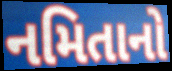
નમિતાનો